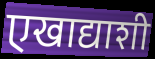
एखाद्याशी